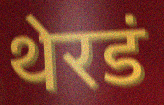
थेरडं